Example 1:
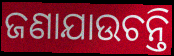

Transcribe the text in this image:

ଜଣାଯାଉଚନ୍ତି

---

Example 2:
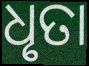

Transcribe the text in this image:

ଧୃତା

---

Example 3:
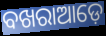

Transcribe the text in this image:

ବଖରାଆଡ଼େ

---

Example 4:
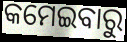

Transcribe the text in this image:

କମେଇବାରୁ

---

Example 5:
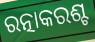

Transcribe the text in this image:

ରତ୍ନାକରଶ୍ଚ